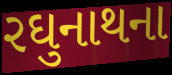
રઘુનાથના